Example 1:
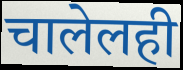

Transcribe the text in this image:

चालेलही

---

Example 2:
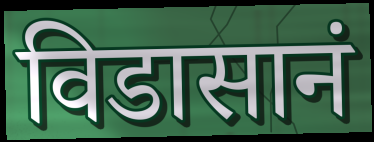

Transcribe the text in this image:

विडासानं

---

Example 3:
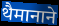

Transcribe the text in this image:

थैमानाने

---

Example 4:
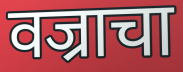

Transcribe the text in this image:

वज्राचा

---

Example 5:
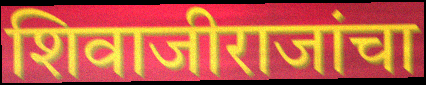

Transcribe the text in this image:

शिवाजीराजांचा